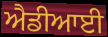
ਐਡੀਆਈ